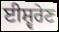
ਈਸ਼੍ਵਰੇਣ